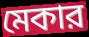
মেকার